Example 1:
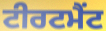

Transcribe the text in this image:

ਟੀਰਟਮੈਂਟ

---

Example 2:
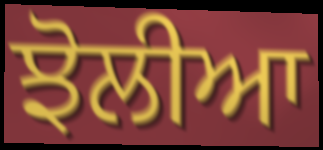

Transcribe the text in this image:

ਝੋਲੀਆ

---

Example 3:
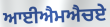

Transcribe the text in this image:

ਆਈਐਮਐਚਏ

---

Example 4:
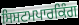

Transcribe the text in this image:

ਸਿਸਟਮਪਾਰਕਿੰਗ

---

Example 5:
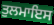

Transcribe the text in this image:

ਤੁਲਮਾਇਸ